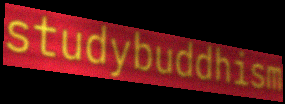
studybuddhism